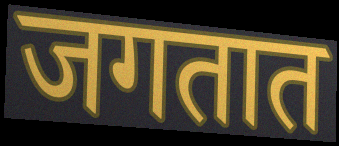
जगतात